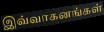
இவ்வாகனங்கள்